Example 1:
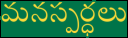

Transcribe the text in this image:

మనస్పర్ధలు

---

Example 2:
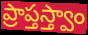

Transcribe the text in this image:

ప్రాప్తస్త్వాం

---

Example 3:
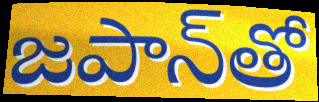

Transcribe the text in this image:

జపాన్‌తో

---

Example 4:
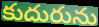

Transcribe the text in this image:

కుదురును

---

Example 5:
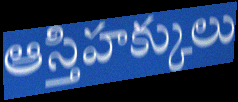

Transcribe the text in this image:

ఆస్తిహక్కులు